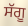
ਸੱਗੂ